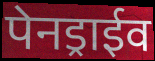
पेनड्राईव